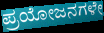
ಪ್ರಯೋಜನಗಳೇ